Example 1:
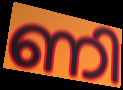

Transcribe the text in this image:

ണി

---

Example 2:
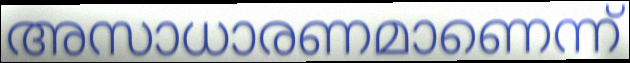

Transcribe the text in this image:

അസാധാരണമാണെന്ന്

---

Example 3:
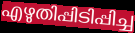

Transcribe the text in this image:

എഴുതിപ്പിടിപ്പിച്ച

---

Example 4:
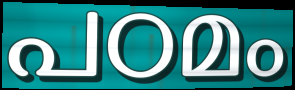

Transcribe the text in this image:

പഠമം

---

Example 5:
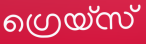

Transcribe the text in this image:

ഗ്രെയ്സ്